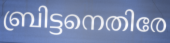
ബ്രിട്ടനെതിരേ